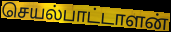
செயல்பாட்டாளன்